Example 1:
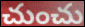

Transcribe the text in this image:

చుంచు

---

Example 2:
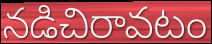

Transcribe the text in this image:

నడిచిరావటం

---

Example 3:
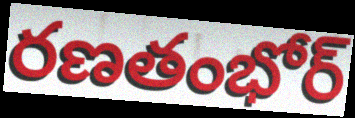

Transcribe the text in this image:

రణతంభోర్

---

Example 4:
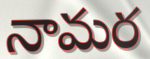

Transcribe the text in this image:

నామర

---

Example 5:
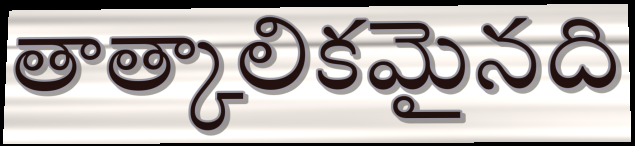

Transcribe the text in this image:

తాత్కాలికమైనది